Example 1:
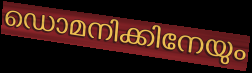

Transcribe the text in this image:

ഡൊമനിക്കിനേയും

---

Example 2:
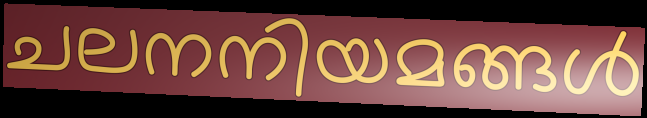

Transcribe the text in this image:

ചലനനിയമങ്ങൾ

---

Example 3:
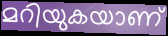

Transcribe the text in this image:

മറിയുകയാണ്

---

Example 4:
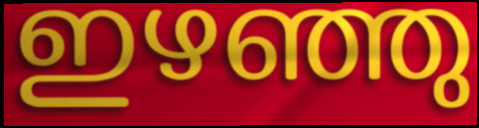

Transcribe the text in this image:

ഇഴഞ്ഞു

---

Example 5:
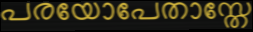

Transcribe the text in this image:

പരയോപേതാസ്തേ